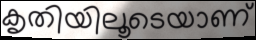
കൃതിയിലൂടെയാണ്